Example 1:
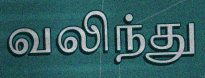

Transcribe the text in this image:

வலிந்து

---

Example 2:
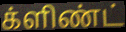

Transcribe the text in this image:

க்ளிண்ட்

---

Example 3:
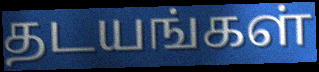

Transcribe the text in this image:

தடயங்கள்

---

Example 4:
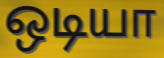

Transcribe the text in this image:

ஒடியா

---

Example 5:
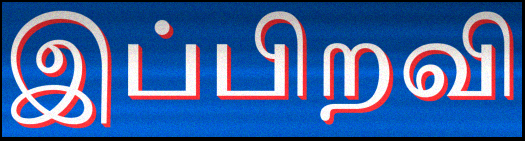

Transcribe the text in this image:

இப்பிறவி